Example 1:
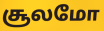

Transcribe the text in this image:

சூலமோ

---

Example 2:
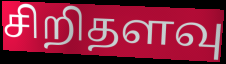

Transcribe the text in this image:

சிறிதளவு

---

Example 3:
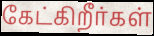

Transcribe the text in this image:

கேட்கிறீர்கள்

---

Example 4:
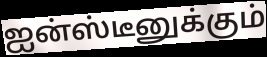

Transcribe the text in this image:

ஐன்ஸ்டீனுக்கும்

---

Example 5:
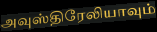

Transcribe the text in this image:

அவுஸ்திரேலியாவும்